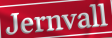
Jernvall